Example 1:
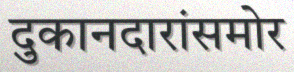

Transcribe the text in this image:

दुकानदारांसमोर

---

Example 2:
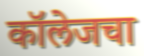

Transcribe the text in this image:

कॉलेजचा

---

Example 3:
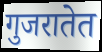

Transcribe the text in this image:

गुजरातेत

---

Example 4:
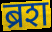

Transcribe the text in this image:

ब्रश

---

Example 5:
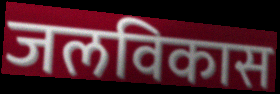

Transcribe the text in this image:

जलविकास